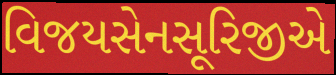
વિજયસેનસૂરિજીએ